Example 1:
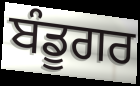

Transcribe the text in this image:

ਬੰਡੂਗਰ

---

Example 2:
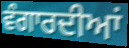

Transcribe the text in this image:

ਵੰਗਾਰਦੀਆਂ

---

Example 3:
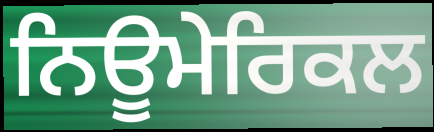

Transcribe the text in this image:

ਨਿਊਮੇਰਿਕਲ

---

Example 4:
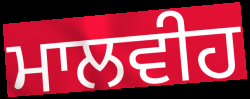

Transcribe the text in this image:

ਮਾਲਵੀਹ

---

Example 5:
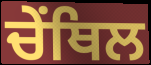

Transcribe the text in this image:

ਚੇਂਥਿਲ